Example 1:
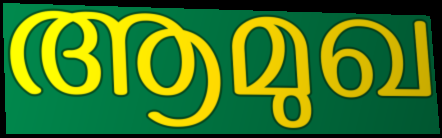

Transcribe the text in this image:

ആമുഖ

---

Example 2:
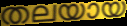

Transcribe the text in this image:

തലയായ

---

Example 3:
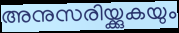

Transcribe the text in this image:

അനുസരിയ്ക്കുകയും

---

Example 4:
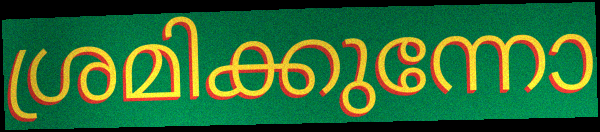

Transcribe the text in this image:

ശ്രമിക്കുന്നോ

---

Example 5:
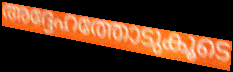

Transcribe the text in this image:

അദ്ദേഹത്തോടുകൂടെ